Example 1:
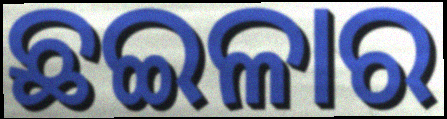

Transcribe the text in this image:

ଛଇଳାର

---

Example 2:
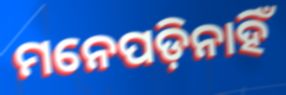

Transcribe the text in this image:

ମନେପଡ଼ିନାହିଁ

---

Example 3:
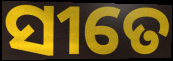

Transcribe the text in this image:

ସୀତେ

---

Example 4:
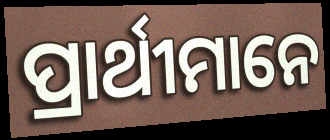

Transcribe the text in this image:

ପ୍ରାର୍ଥୀମାନେ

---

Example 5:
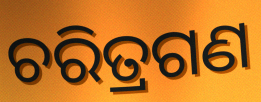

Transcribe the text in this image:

ଚରିତ୍ରଗଣ